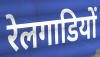
रेलगाडियों